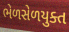
ભેળસેળયુક્ત